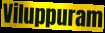
Viluppuram